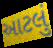
આટલું